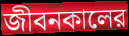
জীবনকালের